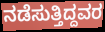
ನಡೆಸುತ್ತಿದ್ದವರ